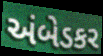
અંબેડકર